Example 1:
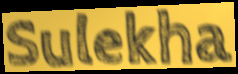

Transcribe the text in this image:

Sulekha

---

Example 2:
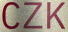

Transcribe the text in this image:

CZK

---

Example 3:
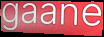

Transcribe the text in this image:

gaane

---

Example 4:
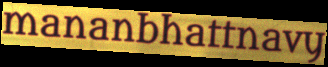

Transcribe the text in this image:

mananbhattnavy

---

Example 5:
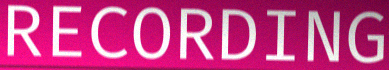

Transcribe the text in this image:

RECORDING